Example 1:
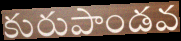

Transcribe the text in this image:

కురుపాండవ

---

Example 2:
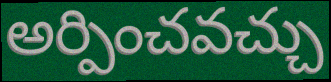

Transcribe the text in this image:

అర్పించవచ్చు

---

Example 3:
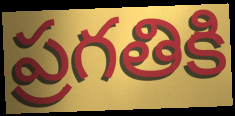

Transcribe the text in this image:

ప్రగతికి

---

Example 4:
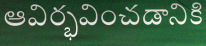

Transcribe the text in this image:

ఆవిర్భవించడానికి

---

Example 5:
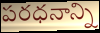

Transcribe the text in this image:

పరధనాన్ని